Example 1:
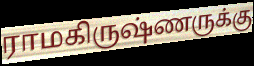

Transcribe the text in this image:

ராமகிருஷ்ணருக்கு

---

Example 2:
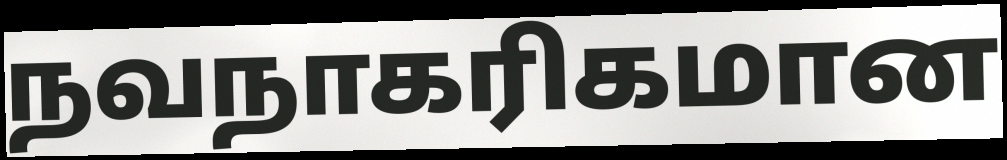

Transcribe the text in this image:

நவநாகரிகமான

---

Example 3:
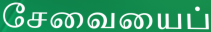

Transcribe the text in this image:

சேவையைப்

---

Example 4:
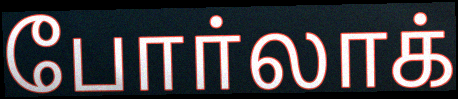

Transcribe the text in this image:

போர்லாக்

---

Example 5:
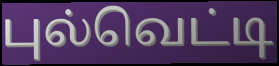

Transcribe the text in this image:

புல்வெட்டி